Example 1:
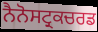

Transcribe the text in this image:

ਨੈਨੋਸਟ੍ਰਕਚਰਡ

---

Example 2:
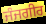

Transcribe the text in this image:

ਜੰਜਗੀਰ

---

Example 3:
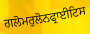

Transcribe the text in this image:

ਗਲੋਮਰੁਲੋਨਫ੍ਰਾਈਟਿਸ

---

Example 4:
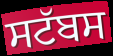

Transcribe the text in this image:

ਸਟੱਬਸ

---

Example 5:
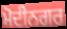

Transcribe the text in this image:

ਮੋਦੀਨਗਰ